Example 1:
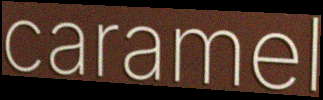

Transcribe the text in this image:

caramel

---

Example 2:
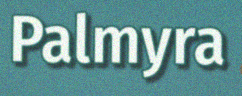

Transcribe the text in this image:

Palmyra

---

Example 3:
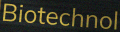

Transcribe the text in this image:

Biotechnol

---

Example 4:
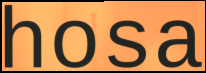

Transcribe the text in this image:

hosa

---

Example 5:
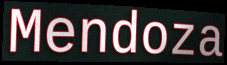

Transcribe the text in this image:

Mendoza